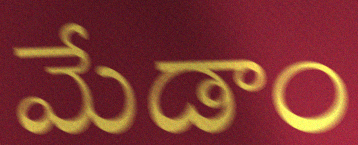
మేడాం